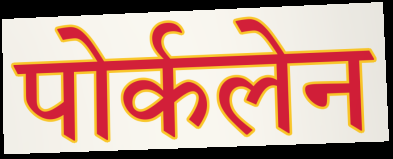
पोर्कलेन